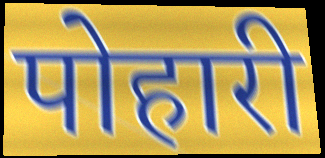
पोहारी